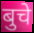
बुचे